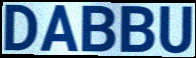
DABBU